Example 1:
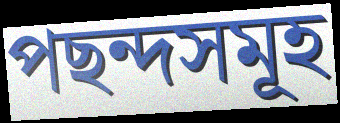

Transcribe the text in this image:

পছন্দসমূহ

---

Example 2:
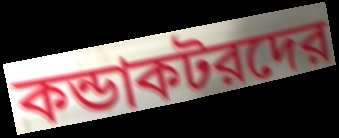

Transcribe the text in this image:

কন্ডাকটরদের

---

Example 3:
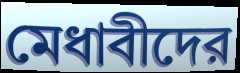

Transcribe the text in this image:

মেধাবীদের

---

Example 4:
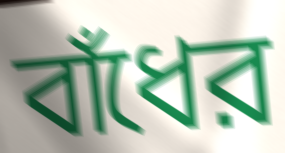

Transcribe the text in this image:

বাঁধের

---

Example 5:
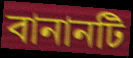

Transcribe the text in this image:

বানানটি